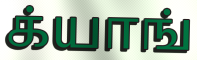
க்யாங்